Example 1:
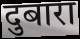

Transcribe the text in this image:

दुबारा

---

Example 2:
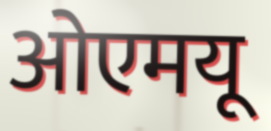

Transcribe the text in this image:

ओएमयू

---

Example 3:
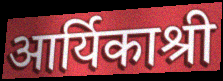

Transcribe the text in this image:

आर्यिकाश्री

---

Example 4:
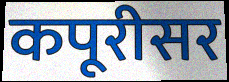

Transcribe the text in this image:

कपूरीसर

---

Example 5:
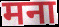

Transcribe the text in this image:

मना